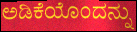
ಅಡಿಕೆಯೊಂದನ್ನು